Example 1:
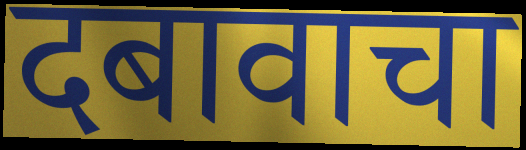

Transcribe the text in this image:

दबावाचा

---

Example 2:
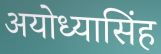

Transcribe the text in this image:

अयोध्यासिंह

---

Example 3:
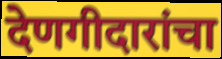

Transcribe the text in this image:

देणगीदारांचा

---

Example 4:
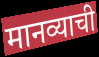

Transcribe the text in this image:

मानव्याची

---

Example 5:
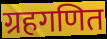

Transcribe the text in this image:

ग्रहगणित